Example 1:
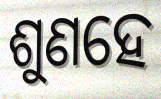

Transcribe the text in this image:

ଶୁଣହେ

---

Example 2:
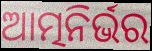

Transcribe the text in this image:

ଆତ୍ମନିର୍ଭର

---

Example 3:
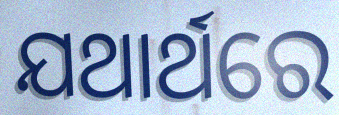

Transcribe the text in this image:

ଯଥାର୍ଥରେ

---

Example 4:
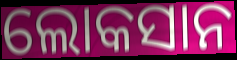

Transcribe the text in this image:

ଲୋକସାନ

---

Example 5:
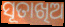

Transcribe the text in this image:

ସୂତାଖିଅ